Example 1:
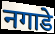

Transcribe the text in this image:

नगाडे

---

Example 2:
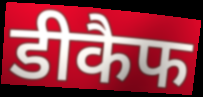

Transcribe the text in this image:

डीकैफ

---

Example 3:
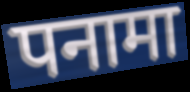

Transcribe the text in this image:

पनामा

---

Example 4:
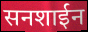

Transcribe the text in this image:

सनशाईन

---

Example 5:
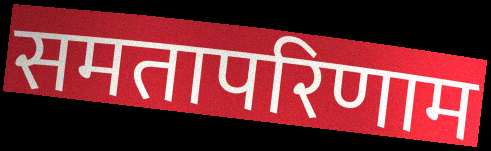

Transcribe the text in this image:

समतापरिणाम